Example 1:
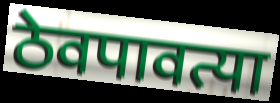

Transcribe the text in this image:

ठेवपावत्या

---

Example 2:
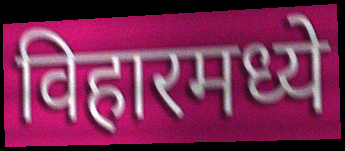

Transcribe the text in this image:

विहारमध्ये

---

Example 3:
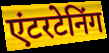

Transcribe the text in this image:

एंटरटेनिंग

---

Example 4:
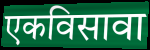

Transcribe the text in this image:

एकविसावा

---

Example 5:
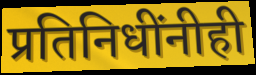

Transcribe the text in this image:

प्रतिनिधींनीही